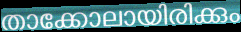
താക്കോലായിരിക്കും